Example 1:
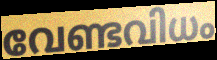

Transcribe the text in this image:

വേണ്ടവിധം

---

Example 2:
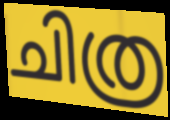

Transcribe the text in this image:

ചിത്ര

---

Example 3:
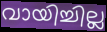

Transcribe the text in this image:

വായിച്ചില്ല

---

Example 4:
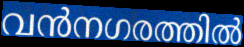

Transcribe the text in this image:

വൻനഗരത്തിൽ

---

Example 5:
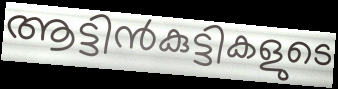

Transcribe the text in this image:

ആട്ടിൻകുട്ടികളുടെ